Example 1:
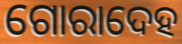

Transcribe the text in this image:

ଗୋରାଦେହ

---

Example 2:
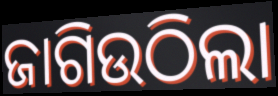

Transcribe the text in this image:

ଜାଗିଉଠିଲା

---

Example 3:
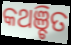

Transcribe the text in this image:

କଥଞ୍ଚିତ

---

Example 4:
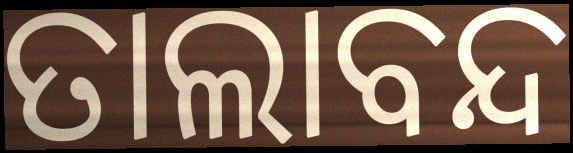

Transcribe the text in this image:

ତାଲାବନ୍ଦ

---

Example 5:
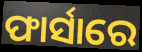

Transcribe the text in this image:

ଫାର୍ସାରେ